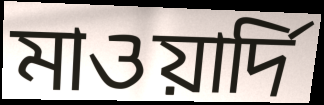
মাওয়ার্দি